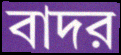
বাদর